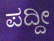
ಪದ್ದೀ